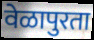
वेळापुरता